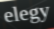
elegy